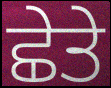
ਛੇਤੇ